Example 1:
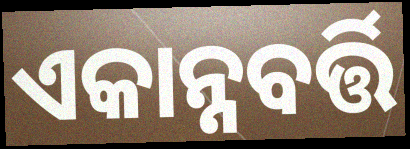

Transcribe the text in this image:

ଏକାନ୍ନବର୍ତ୍ତି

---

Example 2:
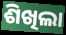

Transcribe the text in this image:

ଶିଖିଲା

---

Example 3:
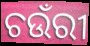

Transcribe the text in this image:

ଚଉଁରୀ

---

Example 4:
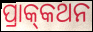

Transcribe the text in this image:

ପ୍ରାକ୍‌କଥନ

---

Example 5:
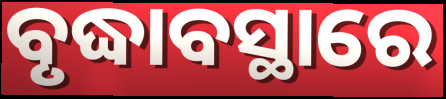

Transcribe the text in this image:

ବୃଦ୍ଧାବସ୍ଥାରେ